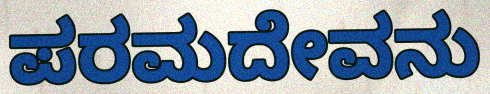
ಪರಮದೇವನು